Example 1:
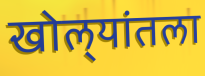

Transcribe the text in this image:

खोल्यांतला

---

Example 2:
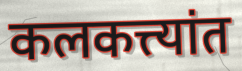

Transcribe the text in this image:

कलकत्त्यांत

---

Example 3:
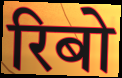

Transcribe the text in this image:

रिबो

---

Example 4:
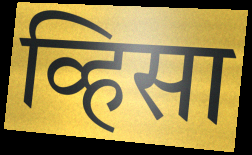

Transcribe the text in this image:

व्हिसा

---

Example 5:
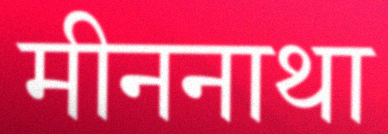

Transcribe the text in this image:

मीननाथा